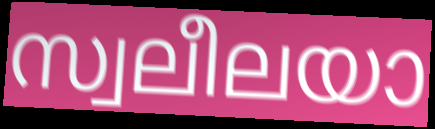
സ്വലീലയാ